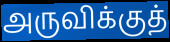
அருவிக்குத்